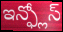
ఇన్ఫ్లోస్